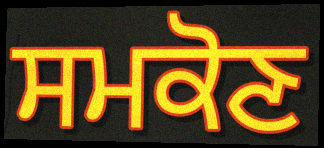
ਸਮਕੋਣ